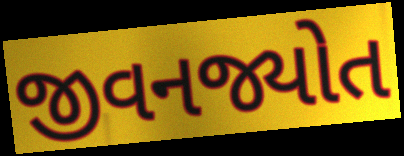
જીવનજ્યોત